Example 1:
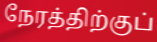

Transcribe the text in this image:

நேரத்திற்குப்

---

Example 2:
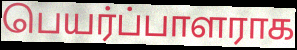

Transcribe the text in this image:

பெயர்ப்பாளராக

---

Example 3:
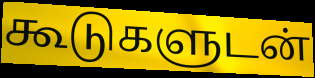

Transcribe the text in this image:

கூடுகளுடன்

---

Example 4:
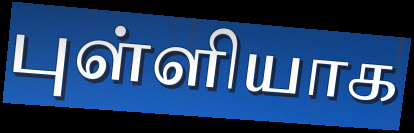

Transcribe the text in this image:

புள்ளியாக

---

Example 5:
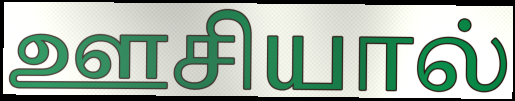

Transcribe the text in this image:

ஊசியால்